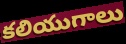
కలియుగాలు